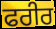
ਫਰੀਰ